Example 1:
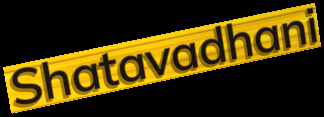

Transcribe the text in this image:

Shatavadhani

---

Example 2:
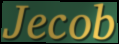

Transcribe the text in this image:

Jecob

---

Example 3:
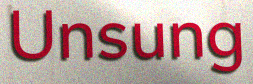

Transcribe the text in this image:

Unsung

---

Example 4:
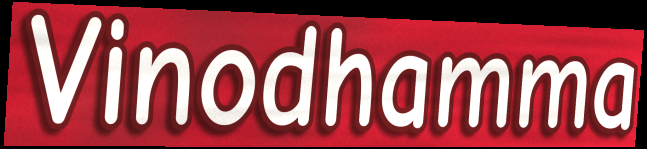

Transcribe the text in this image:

Vinodhamma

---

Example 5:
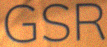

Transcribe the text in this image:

GSR